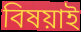
বিষয়াই